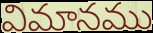
విమానము